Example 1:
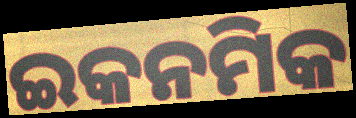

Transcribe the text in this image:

ଇକନମିକ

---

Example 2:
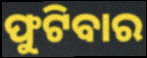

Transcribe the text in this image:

ଫୁଟିବାର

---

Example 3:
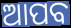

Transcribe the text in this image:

ଆପବ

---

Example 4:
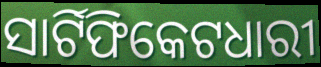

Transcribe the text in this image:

ସାର୍ଟିଫିକେଟଧାରୀ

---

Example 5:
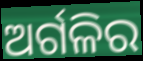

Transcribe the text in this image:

ଅର୍ଗଳିର